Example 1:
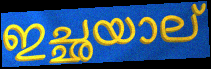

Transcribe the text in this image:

ഇച്ഛയാല്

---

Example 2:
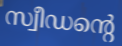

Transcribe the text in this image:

സ്വീഡന്റെ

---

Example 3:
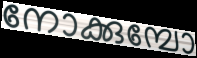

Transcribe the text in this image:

നോക്കുമ്പോ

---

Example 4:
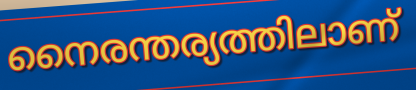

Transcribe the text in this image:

നൈരന്തര്യത്തിലാണ്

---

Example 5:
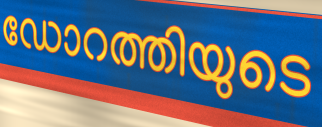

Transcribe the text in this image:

ഡോറത്തിയുടെ